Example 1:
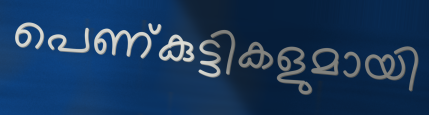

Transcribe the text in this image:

പെണ്കുട്ടികളുമായി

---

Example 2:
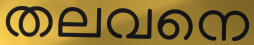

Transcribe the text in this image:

തലവനെ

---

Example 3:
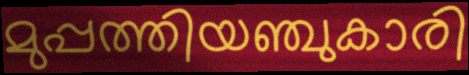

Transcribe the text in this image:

മുപ്പത്തിയഞ്ചുകാരി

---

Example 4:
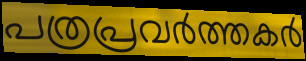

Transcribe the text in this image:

പത്രപ്രവർത്തകർ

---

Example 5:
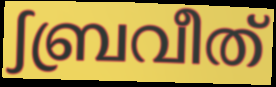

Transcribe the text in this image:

ഽബ്രവീത്